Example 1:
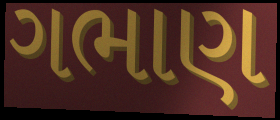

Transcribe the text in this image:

ગભાણ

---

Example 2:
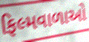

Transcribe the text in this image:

ફિલ્મવાળાઓ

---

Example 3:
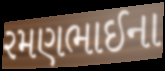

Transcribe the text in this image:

રમણભાઈના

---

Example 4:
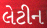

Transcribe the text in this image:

લેટીન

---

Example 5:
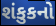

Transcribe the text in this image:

શંકુકનો